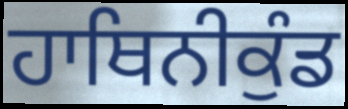
ਹਾਥਿਨੀਕੁੰਡ